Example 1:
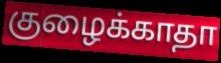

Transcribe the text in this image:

குழைக்காதா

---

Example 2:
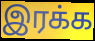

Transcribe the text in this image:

இரக்க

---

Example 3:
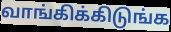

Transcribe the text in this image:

வாங்கிக்கிடுங்க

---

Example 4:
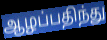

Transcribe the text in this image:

ஆழப்பதிந்து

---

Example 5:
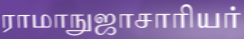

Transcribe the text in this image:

ராமாநுஜாசாரியர்